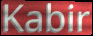
Kabir